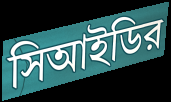
সিআইডির